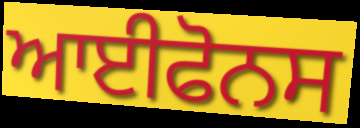
ਆਈਫੋਨਸ